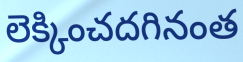
లెక్కించదగినంత